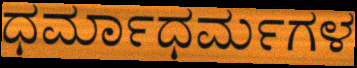
ಧರ್ಮಾಧರ್ಮಗಳ